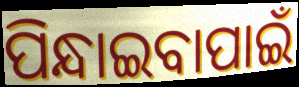
ପିନ୍ଧାଇବାପାଇଁ